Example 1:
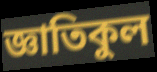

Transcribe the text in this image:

জ্ঞাতিকুল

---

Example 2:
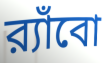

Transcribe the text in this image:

র‍্যাঁবো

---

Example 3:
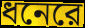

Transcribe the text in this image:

ধনেরে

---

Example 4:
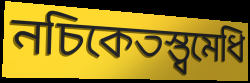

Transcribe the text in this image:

নচিকেতস্ত্বমেধি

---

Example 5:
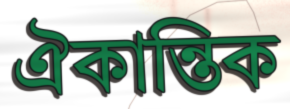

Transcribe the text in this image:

ঐকান্তিক